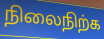
நிலைநிற்க